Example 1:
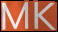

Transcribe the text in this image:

MK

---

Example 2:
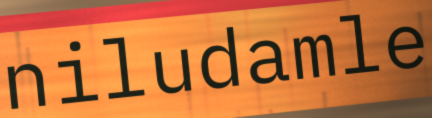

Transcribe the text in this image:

niludamle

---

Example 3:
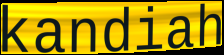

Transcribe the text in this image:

kandiah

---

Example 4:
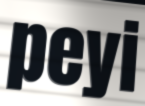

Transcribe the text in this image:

peyi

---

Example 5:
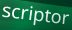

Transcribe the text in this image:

scriptor